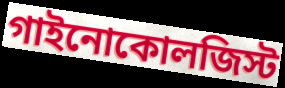
গাইনোকোলজিস্ট